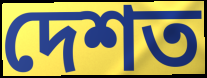
দেশত